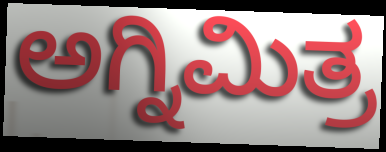
ಅಗ್ನಿಮಿತ್ರ